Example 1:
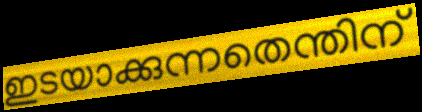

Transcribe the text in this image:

ഇടയാക്കുന്നതെന്തിന്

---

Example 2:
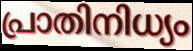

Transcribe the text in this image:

പ്രാതിനിധ്യം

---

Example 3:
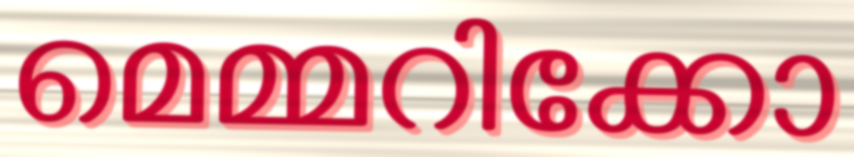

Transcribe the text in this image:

മെമ്മറിക്കോ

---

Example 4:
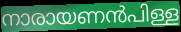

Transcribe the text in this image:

നാരായണൻപിള്ള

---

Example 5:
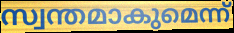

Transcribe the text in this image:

സ്വന്തമാകുമെന്ന്